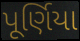
પૂર્ણિયા